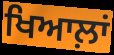
ਖਿਆਲ਼ਾਂ